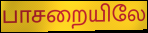
பாசறையிலே